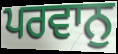
ਪਰਵਾਨੁ